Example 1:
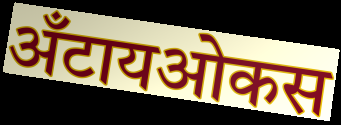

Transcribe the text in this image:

अँटायओकस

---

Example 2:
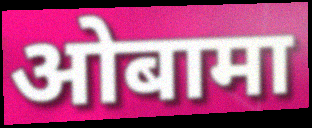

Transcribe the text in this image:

ओबामा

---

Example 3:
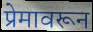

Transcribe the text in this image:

प्रेमावरून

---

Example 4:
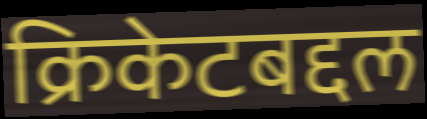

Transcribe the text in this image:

क्रिकेटबद्दल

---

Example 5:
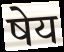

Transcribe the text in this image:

षेय